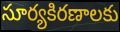
సూర్యకిరణాలకు